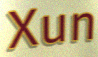
Xun